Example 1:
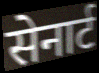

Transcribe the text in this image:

सेनार्ट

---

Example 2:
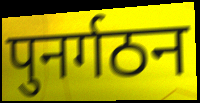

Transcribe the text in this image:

पुनर्गठन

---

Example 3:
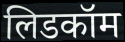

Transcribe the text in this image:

लिडकॉम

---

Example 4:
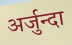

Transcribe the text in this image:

अर्जुन्दा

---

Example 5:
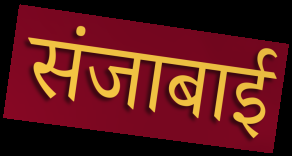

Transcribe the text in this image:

संजाबाई